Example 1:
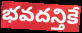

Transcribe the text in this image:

భవదన్తికే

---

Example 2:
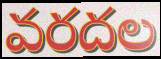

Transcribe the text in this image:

వరదల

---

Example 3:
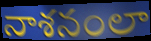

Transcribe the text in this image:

నాశనంలా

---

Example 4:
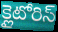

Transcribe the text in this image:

క్లైటోరిస్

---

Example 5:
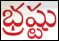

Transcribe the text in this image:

భ్రష్టు